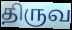
திருவ